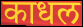
काधल